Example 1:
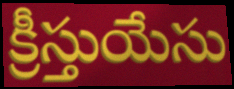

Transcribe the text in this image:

క్రీస్తుయేసు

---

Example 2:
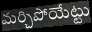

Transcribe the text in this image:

మర్చిపోయేట్టు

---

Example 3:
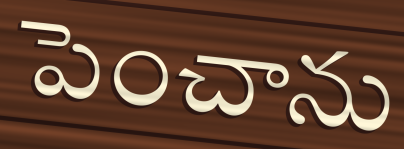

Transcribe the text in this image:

పెంచాను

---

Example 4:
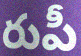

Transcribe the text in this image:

రుపీ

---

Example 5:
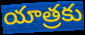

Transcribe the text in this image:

యాత్రకు